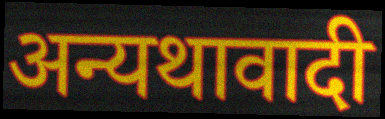
अन्यथावादी